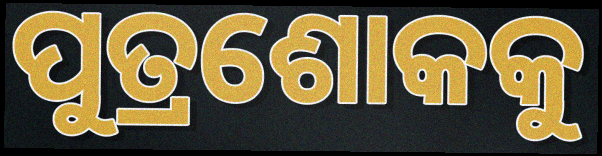
ପୁତ୍ରଶୋକକୁ